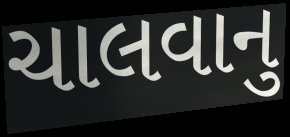
ચાલવાનુ